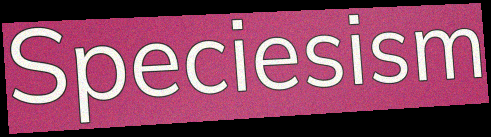
Speciesism